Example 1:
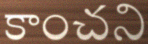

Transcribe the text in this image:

కాంచని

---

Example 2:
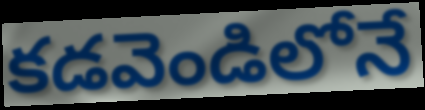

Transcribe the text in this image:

కడవెండిలోనే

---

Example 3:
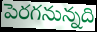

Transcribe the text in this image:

పెరగనున్నది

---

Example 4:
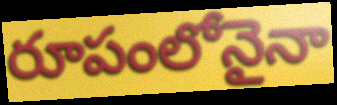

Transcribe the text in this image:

రూపంలోనైనా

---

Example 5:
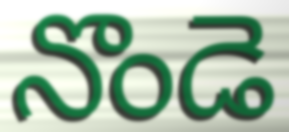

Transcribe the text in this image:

నొండె